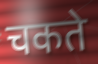
चकते